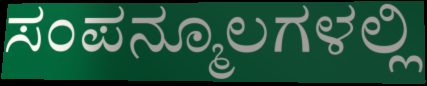
ಸಂಪನ್ಮೂಲಗಳಲ್ಲಿ